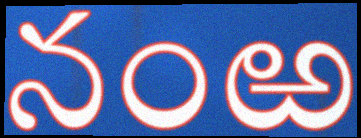
నంఱ